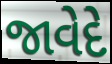
જાવેદે